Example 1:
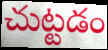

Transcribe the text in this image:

చుట్టడం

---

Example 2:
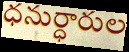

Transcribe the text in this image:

ధనుర్ధారుల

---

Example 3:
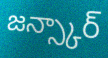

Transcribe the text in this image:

జన్స్కార్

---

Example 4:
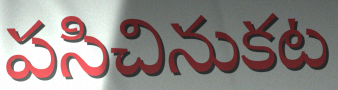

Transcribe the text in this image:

పసిచినుకట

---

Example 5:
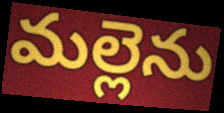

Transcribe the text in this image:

మల్లెను